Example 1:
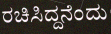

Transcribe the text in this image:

ರಚಿಸಿದ್ದನೆಂದು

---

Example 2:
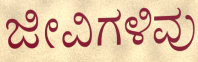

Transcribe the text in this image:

ಜೀವಿಗಳಿವು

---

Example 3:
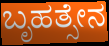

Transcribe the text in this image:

ಬೃಹತ್ಸೇನ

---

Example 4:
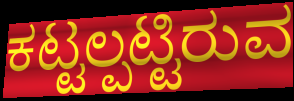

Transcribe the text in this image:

ಕಟ್ಟಲ್ಪಟ್ಟಿರುವ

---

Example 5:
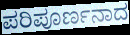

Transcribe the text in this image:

ಪರಿಪೂರ್ಣನಾದ